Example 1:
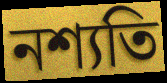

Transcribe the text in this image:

নশ্যতি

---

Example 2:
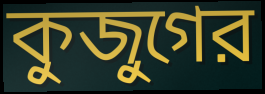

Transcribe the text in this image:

কুজুগের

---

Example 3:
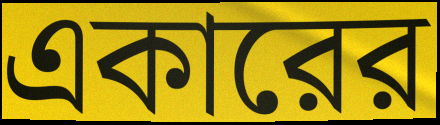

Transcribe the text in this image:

একারের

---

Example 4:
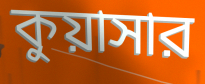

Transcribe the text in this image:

কুয়াসার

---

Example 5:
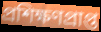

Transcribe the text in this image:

প্রশিক্ষণপ্রাপ্ত